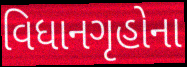
વિધાનગૃહોના